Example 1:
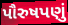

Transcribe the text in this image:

પૌરુષપણું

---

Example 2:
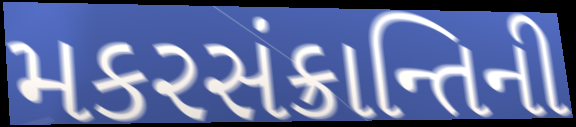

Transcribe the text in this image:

મકરસંક્રાન્તિની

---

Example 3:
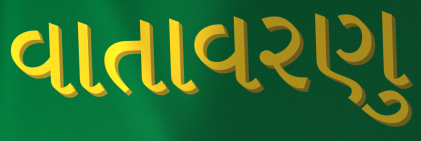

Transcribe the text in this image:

વાતાવરણુ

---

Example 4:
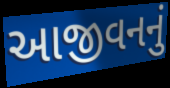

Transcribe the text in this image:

આજીવનનું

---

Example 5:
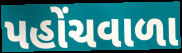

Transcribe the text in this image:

પહોંચવાળા